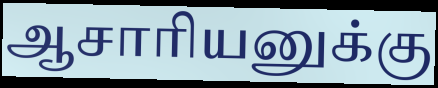
ஆசாரியனுக்கு